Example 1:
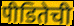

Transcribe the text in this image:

पीडितेची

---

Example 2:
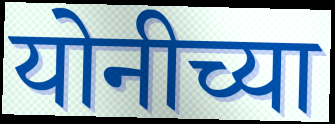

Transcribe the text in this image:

योनीच्या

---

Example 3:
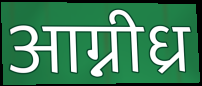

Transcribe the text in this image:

आग्नीध्र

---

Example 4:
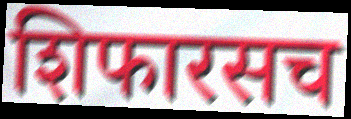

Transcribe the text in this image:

शिफारसच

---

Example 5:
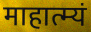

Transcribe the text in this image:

माहात्म्यं